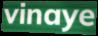
vinaye